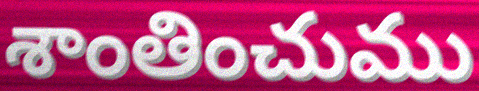
శాంతించుము